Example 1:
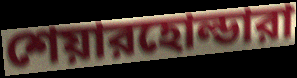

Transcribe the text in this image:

শেয়ারহোল্ডারা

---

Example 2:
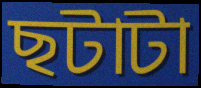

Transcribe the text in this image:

ছটাটা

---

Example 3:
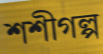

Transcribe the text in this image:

শশীগল্প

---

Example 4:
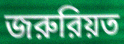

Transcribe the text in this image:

জরুরিয়ত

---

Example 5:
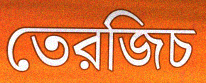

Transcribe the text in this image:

তেরজিচ